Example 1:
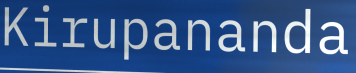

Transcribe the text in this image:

Kirupananda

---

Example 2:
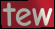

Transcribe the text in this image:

tew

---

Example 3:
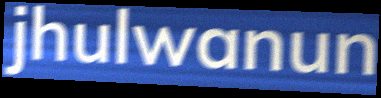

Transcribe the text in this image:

jhulwanun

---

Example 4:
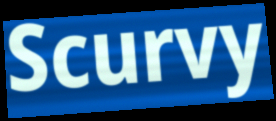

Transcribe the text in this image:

Scurvy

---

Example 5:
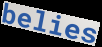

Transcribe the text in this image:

belies